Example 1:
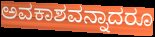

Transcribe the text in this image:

ಅವಕಾಶವನ್ನಾದರೂ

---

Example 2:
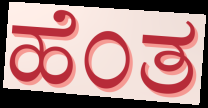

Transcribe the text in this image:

ಹೆಂತ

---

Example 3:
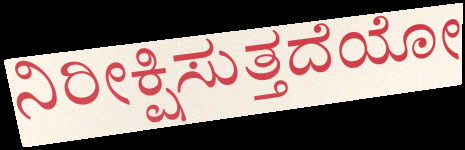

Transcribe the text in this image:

ನಿರೀಕ್ಷಿಸುತ್ತದೆಯೋ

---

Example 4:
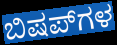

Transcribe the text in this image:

ಬಿಷಪ್‌ಗಳ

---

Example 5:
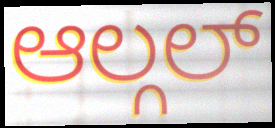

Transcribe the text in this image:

ಆಲ್ಗಲ್